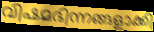
വിഷമഭിന്നങ്ങളാക്കി